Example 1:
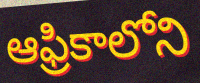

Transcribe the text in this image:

ఆఫ్రికాలోని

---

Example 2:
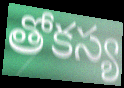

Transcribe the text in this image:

తోకస్య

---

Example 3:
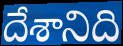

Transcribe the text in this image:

దేశానిది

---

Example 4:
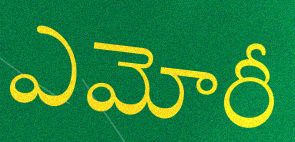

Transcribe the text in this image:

ఎమోరీ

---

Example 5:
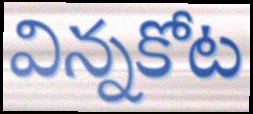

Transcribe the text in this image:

విన్నకోట